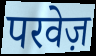
परवेज़